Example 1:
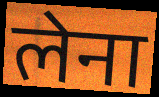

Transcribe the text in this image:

लेना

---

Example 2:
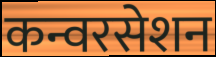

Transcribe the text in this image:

कन्वरसेशन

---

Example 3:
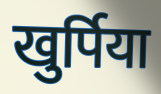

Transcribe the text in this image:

खुर्पिया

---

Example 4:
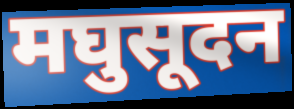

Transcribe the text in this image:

मघुसूदन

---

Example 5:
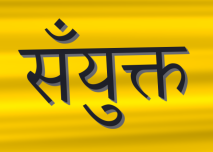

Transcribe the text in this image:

सँयुक्त